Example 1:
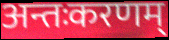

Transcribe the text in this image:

अन्तःकरणम्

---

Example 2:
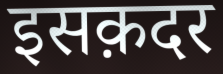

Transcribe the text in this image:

इसक़दर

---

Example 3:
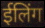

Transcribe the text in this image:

ईलिंग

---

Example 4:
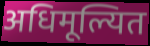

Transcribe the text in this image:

अधिमूल्यित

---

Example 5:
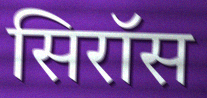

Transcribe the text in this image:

सिरॉस